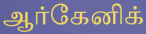
ஆர்கேனிக்